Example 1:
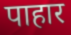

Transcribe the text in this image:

पाहार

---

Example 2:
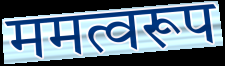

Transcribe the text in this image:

ममत्वरूप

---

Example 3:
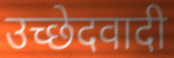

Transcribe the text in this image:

उच्छेदवादी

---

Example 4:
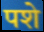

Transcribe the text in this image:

पशे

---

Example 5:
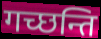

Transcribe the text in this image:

गच्छन्ति